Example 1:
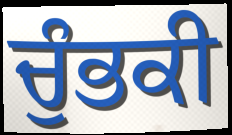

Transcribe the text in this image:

ਚੁੰਭਕੀ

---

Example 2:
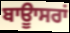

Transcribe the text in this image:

ਬਾਊਾਸਰਾਂ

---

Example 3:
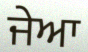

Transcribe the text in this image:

ਜੇਆ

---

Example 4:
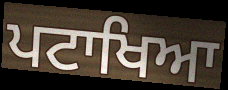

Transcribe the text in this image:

ਪਟਾਖਿਆ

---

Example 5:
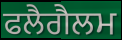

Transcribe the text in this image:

ਫਲੈਗੈਲਮ